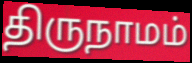
திருநாமம்